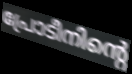
പ്രോടീനിന്റെ